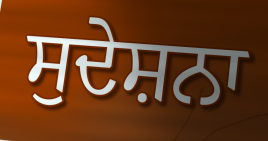
ਸੁਦੇਸ਼ਨਾ